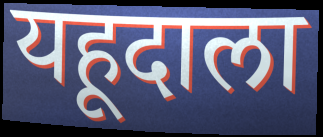
यहूदाला